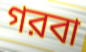
গরবা